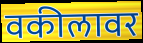
वकीलावर